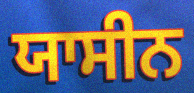
ਯਾਸੀਨ